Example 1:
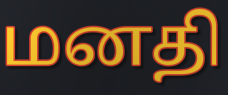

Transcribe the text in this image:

மனதி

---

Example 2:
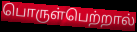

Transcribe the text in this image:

பொருள்பெற்றால்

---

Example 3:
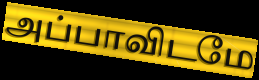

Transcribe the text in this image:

அப்பாவிடமே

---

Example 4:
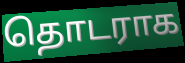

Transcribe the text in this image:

தொடராக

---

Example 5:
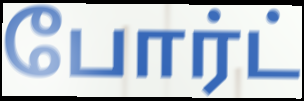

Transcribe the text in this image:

போர்ட்